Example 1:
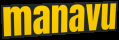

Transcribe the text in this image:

manavu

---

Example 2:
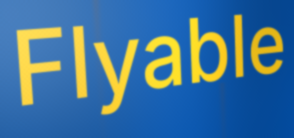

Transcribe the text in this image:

Flyable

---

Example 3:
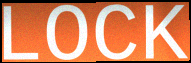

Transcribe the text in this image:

LOCK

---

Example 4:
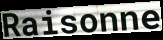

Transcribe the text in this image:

Raisonne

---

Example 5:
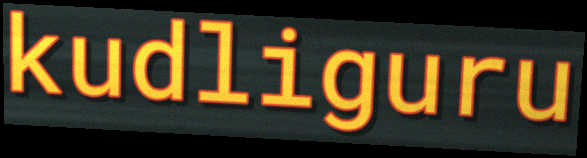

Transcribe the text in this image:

kudliguru